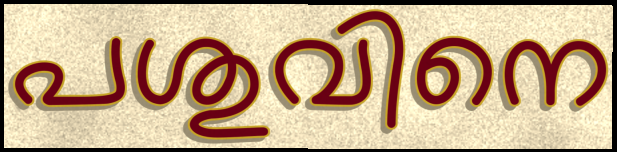
പശുവിനെ